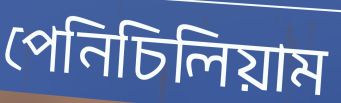
পেনিচিলিয়াম